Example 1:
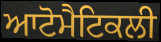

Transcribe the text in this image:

ਆਟੋਮੈਟਿਕਲੀ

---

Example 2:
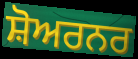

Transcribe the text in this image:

ਸ਼ੋਅਰਨਰ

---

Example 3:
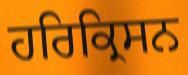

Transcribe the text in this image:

ਹਰਿਕ੍ਰਿਸਨ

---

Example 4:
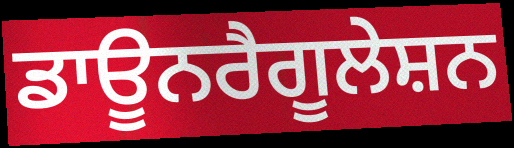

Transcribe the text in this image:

ਡਾਊਨਰੈਗੂਲੇਸ਼ਨ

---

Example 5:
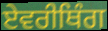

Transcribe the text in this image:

ਏਵਰੀਥਿੰਗ